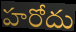
హరోదు